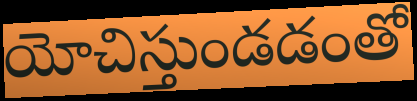
యోచిస్తుండడంతో